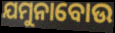
ଯମୁନାବୋଉ